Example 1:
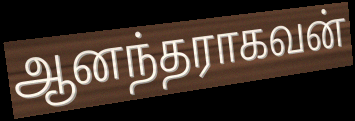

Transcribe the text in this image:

ஆனந்தராகவன்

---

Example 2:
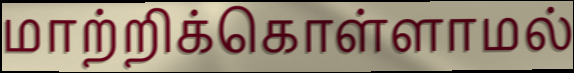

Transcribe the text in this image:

மாற்றிக்கொள்ளாமல்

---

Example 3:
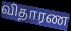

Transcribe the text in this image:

விதாரண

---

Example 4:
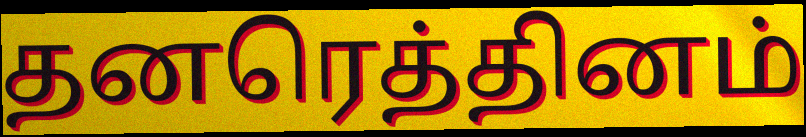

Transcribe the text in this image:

தனரெத்தினம்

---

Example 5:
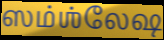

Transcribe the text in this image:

ஸம்ஶ்லேஷ